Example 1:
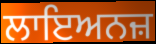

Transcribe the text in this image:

ਲਾਇਅਨਜ਼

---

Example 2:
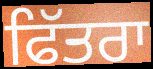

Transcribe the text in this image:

ਫਿੱਤਰਾ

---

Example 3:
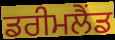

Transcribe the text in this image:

ਡਰੀਮਲੈਂਡ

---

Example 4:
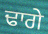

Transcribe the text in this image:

ਢਾਗੇ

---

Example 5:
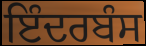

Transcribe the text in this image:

ਇੰਦਰਬੰਸ